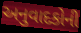
અનુવાદકોની